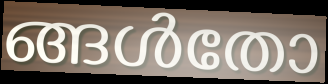
ങ്ങൾതോ